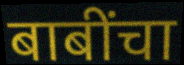
बाबींचा